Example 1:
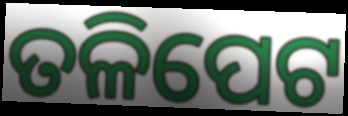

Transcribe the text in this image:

ତଳିପେଟ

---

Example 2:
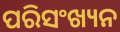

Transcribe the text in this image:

ପରିସଂଖ୍ୟନ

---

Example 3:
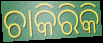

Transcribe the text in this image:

ଚାକିରିକି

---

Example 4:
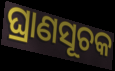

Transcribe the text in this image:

ଘ୍ରାଣସୂଚକ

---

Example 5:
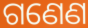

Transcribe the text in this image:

ଗଣେଣ